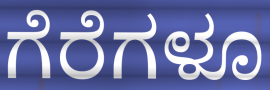
ಗೆರೆಗಳೂ